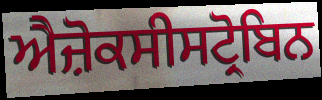
ਐਜ਼ੋਕਸੀਸਟ੍ਰੋਬਿਨ